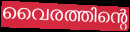
വൈരത്തിന്റെ